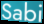
Sabi